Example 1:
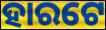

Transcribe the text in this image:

ହାରଟେ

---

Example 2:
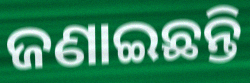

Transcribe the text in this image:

ଜଣାଇଛନ୍ତି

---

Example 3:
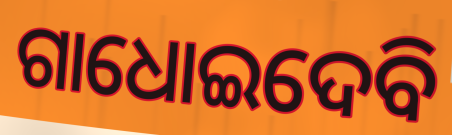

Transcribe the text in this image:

ଗାଧୋଇଦେବି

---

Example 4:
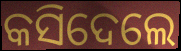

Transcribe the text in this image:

କସିଦେଲେ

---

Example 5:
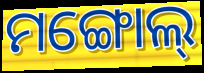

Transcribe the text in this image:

ମଙ୍ଗୋଲ୍